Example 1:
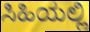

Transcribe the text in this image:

ಸಿಹಿಯಲ್ಲಿ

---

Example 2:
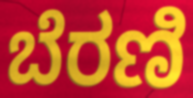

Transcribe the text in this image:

ಬೆರಣಿ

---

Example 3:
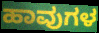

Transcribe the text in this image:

ಹಾವುಗಳ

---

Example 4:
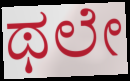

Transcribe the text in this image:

ಥಲೇ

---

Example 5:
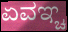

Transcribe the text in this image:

ಏವಞ್ಚ